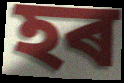
হৰ